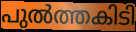
പുൽത്തകിടി